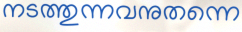
നടത്തുന്നവനുതന്നെ